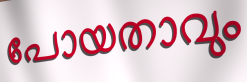
പോയതാവും